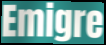
Emigre